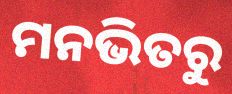
ମନଭିତରୁ